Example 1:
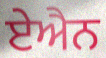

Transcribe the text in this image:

ਏਐਨ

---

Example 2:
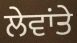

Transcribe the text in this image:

ਲੇਵਾਂਤੇ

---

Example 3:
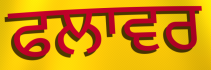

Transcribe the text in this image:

ਫਲਾਵਰ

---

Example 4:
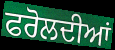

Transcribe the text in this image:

ਫਰੋਲਦੀਆਂ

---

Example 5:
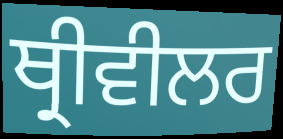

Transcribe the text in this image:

ਥ੍ਰੀਵੀਲਰ